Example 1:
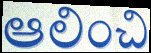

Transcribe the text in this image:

ఆలించి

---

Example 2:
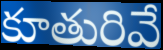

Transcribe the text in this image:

కూతురివే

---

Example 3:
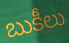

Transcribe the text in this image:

బుకీలు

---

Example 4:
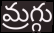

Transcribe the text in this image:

మ్రగ్గు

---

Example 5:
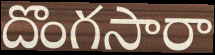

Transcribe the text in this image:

దొంగసారా